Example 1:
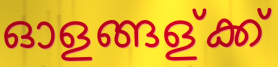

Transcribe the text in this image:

ഓളങ്ങള്ക്ക്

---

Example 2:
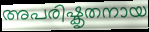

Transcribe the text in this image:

അപരിഷ്കൃതനായ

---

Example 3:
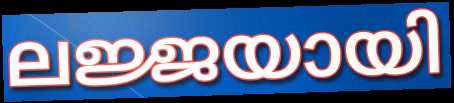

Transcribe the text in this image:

ലജ്ജയായി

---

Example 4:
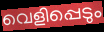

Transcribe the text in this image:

വെളിപ്പെടും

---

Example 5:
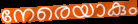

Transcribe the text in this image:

നേരെയാകും